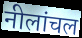
नीलांचल